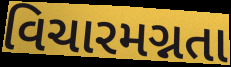
વિચારમગ્નતા